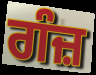
ਗੰਜ਼